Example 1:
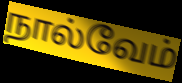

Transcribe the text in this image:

நால்வேம்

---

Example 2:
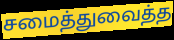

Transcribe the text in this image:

சமைத்துவைத்த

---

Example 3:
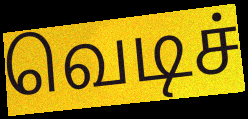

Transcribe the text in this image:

வெடிச்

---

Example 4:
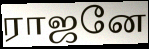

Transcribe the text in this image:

ராஜனே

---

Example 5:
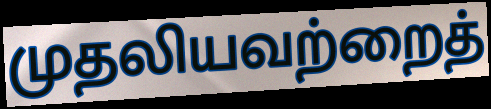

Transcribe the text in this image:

முதலியவற்றைத்